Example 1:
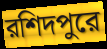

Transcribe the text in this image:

রশিদপুরে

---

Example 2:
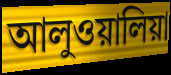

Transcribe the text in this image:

আলুওয়ালিয়া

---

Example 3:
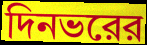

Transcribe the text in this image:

দিনভরের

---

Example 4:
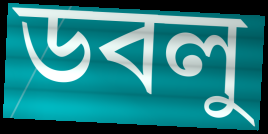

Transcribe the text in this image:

ডবলু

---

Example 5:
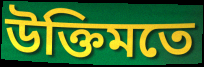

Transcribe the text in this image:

উক্তিমতে